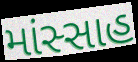
માંસ્સાહ